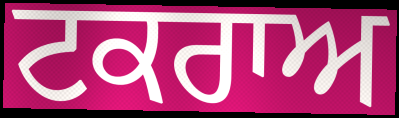
ਟਕਰਾਅ